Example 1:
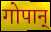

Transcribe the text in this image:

गोपान्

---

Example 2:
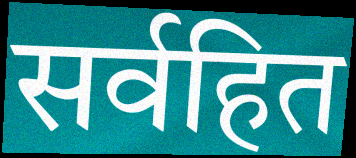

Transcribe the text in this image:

सर्वहित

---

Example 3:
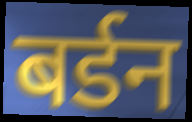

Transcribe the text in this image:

बर्डन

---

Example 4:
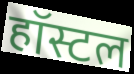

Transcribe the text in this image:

हॉस्टल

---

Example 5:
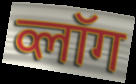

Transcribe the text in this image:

व्लॉग